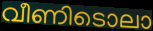
വീണിടൊലാ